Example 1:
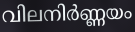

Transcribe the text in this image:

വിലനിർണ്ണയം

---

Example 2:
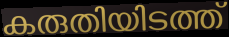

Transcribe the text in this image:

കരുതിയിടത്ത്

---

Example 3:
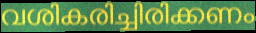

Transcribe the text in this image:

വശികരിച്ചിരിക്കണം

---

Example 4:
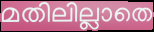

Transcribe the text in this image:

മതിലില്ലാതെ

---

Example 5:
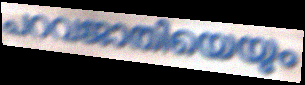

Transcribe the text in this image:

പറവജാതിയെയും